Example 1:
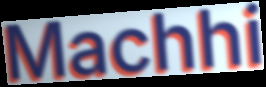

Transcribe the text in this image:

Machhi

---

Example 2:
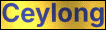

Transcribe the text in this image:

Ceylong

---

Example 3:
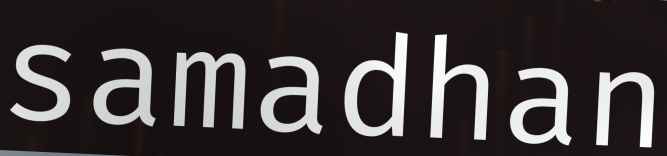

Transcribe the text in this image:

samadhan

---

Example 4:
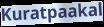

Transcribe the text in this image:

Kuratpaakal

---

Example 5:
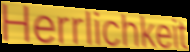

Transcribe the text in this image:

Herrlichkeit